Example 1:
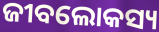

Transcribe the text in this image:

ଜୀବଲୋକସ୍ୟ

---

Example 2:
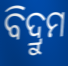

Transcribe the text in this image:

ବିଦ୍ରୁମ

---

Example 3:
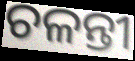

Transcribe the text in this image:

ଚଳନ୍ତୀ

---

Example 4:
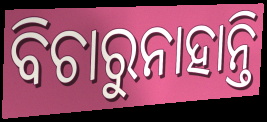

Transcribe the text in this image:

ବିଚାରୁନାହାନ୍ତି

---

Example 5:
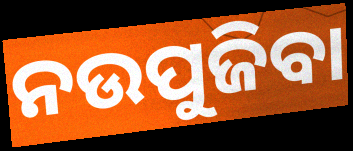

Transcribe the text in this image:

ନଉପୁଜିବା